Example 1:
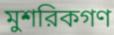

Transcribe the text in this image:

মুশরিকগণ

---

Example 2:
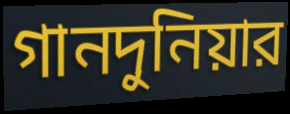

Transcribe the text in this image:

গানদুনিয়ার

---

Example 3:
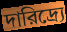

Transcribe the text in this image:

দারিদ্র্যে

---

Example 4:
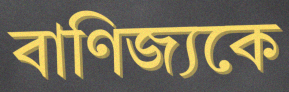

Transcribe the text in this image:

বাণিজ্যকে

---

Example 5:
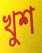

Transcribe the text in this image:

খুশ